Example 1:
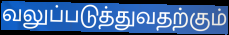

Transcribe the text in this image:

வலுப்படுத்துவதற்கும்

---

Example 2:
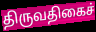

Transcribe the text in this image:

திருவதிகைச்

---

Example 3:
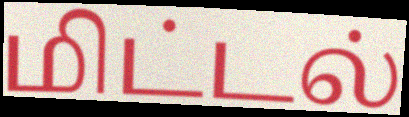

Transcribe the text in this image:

மிட்டல்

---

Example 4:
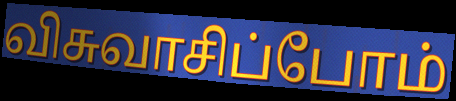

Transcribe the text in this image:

விசுவாசிப்போம்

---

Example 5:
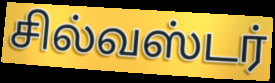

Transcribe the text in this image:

சில்வஸ்டர்